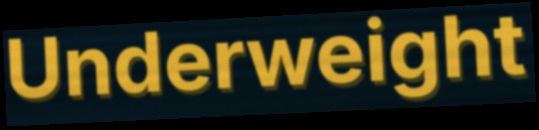
Underweight